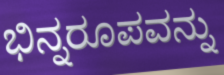
ಭಿನ್ನರೂಪವನ್ನು